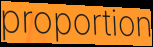
proportion